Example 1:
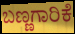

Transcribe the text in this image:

ಬಣ್ಣಗಾರಿಕೆ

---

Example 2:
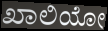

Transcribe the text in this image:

ಖಾಲಿಯೋ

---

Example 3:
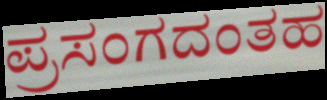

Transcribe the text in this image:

ಪ್ರಸಂಗದಂತಹ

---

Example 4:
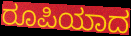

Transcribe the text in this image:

ರೂಪಿಯಾದ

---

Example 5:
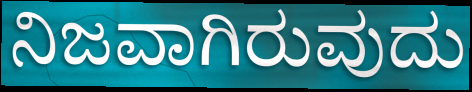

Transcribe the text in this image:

ನಿಜವಾಗಿರುವುದು